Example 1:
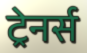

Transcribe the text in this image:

ट्रेनर्स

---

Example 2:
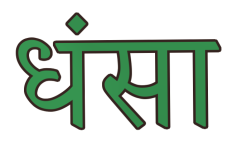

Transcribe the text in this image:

धंसा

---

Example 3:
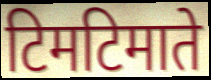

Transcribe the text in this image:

टिमटिमाते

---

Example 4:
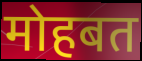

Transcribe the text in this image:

मोहबत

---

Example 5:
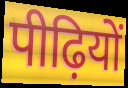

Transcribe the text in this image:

पीढ़ियों